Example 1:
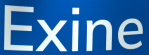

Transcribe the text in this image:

Exine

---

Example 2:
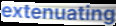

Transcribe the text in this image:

extenuating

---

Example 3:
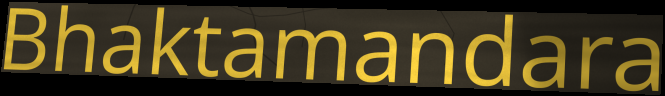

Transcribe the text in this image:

Bhaktamandara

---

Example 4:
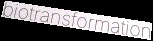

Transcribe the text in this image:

biotransformation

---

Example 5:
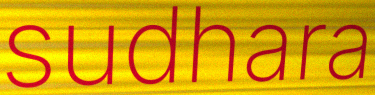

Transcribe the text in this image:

sudhara